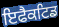
ਇਫੈਕਟਿਡ